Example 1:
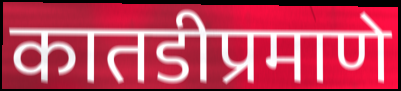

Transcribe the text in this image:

कातडीप्रमाणे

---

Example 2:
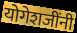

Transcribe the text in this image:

योगेशजींनी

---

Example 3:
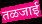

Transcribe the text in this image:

तळजाई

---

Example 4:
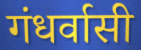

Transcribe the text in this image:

गंधर्वासी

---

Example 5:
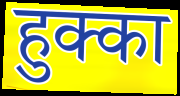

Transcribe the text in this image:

हुक्का